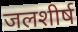
जलशीर्ष